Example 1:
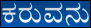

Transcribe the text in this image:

ಕರುವನು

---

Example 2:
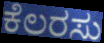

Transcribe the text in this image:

ಕೆಲರಸು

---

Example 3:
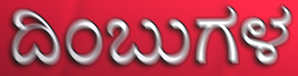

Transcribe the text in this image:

ದಿಂಬುಗಳ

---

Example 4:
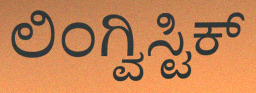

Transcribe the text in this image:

ಲಿಂಗ್ವಿಸ್ಟಿಕ್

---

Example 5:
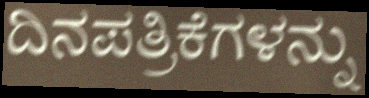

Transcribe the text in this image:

ದಿನಪತ್ರಿಕೆಗಳನ್ನು